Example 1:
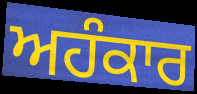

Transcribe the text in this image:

ਅਹੰਕਾਰ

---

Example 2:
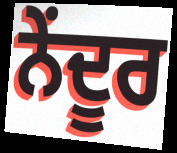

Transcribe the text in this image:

ਨੇਂਦੂਰ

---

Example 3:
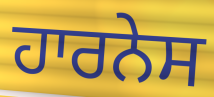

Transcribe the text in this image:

ਹਾਰਨੇਸ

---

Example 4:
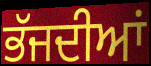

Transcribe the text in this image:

ਭੱਜਦੀਆਂ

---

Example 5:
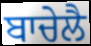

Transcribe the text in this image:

ਬਾਚੇਲੈ